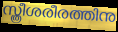
സ്ത്രീശരീരത്തിനു